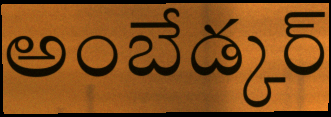
అంబేడ్కర్